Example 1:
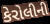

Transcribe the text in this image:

કેરોલીની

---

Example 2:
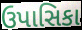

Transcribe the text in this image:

ઉપાસિકા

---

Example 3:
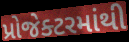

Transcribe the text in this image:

પ્રોજેક્ટરમાંથી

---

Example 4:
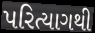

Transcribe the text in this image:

પરિત્યાગથી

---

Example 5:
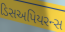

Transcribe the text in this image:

ડિસઅપિયરન્સ